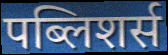
पब्लिशर्स